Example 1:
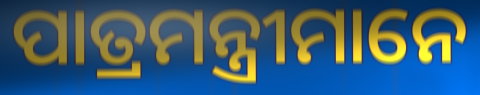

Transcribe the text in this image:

ପାତ୍ରମନ୍ତ୍ରୀମାନେ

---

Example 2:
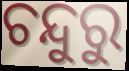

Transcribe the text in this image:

ଚନ୍ଦୁରୁ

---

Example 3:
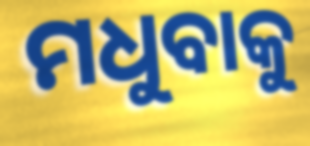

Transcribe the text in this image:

ମଧୁବାକୁ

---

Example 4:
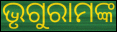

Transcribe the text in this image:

ଭୃଗୁରାମଙ୍କ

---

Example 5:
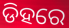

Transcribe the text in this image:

ଡିହରେ